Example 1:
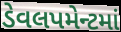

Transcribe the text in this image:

ડેવલપમેન્ટમાં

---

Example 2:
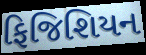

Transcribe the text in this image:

ફિજિશિયન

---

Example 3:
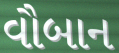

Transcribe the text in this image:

વૌબાન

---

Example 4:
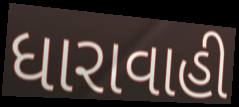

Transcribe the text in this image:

ધારાવાહી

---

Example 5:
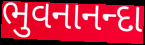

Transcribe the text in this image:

ભુવનાનન્દા